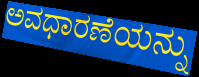
ಅವಧಾರಣೆಯನ್ನು